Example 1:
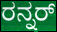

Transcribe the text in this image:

ರನ್ನರ್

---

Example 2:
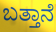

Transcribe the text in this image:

ಬತ್ತಾನೆ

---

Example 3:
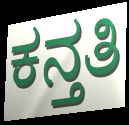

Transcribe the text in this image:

ಕನ್ತತಿ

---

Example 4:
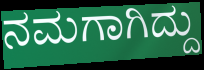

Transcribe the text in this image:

ನಮಗಾಗಿದ್ದು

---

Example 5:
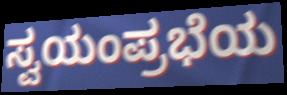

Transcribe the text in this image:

ಸ್ವಯಂಪ್ರಭೆಯ